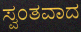
ಸ್ವಂತವಾದ